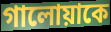
গালোয়াকে